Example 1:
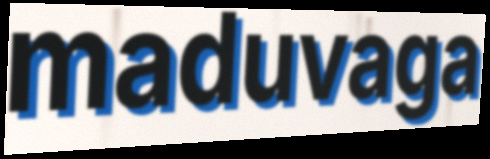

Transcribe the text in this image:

maduvaga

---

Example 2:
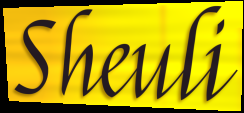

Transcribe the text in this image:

Sheuli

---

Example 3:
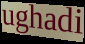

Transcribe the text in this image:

ughadi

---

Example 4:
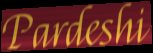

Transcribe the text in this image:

Pardeshi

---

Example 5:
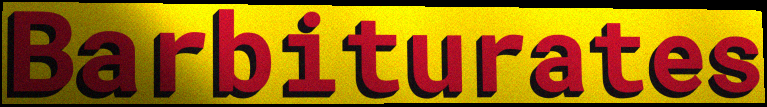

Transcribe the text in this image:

Barbiturates